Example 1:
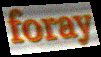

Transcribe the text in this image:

foray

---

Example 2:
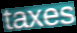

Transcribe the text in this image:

taxes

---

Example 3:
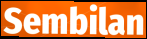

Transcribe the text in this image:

Sembilan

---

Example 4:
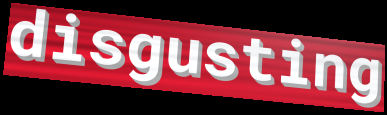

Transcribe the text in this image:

disgusting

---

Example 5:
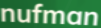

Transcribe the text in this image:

nufman